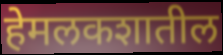
हेमलकशातील